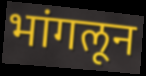
भांगलून